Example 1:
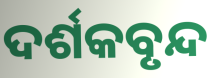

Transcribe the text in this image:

ଦର୍ଶକବୃନ୍ଦ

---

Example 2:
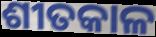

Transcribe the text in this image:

ଶୀତକାଳ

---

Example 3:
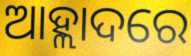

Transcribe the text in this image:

ଆହ୍ଲାଦରେ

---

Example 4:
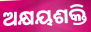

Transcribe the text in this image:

ଅକ୍ଷୟଶକ୍ତି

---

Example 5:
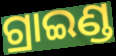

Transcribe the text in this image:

ଗ୍ରାଇଣ୍ଡ